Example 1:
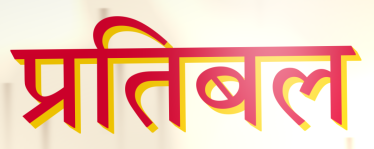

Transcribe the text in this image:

प्रतिबल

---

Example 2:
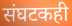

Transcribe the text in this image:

संघटकही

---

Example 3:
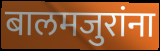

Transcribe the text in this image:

बालमजुरांना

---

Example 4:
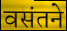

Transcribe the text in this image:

वसंतने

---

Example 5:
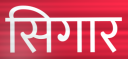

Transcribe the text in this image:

सिगार